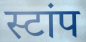
स्टांप